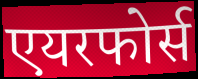
एयरफोर्स